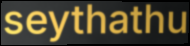
seythathu